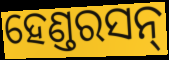
ହେଣ୍ଡରସନ୍